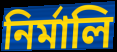
নির্মালি